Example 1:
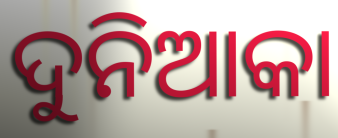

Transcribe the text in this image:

ଦୁନିଆକା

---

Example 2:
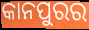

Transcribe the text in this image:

କାନପୁରର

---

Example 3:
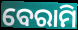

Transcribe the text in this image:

ବେରାମି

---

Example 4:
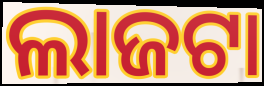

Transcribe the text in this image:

ଲାଜଟା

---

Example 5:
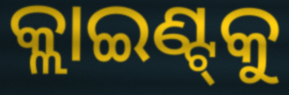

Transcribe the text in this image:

କ୍ଲାଇଣ୍ଟ୍‌କୁ